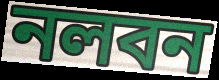
নলবন